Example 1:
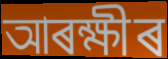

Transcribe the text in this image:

আৰক্ষীৰ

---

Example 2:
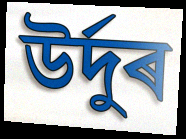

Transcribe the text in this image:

উৰ্দুৰ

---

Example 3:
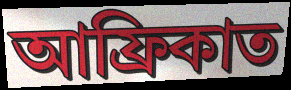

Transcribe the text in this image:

আফ্ৰিকাত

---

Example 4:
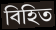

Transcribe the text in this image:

বিহিত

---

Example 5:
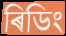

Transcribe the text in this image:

ৰিডিং